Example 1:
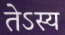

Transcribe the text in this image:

तेऽस्य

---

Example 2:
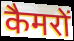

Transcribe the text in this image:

कैमरों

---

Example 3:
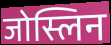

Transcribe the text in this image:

जोस्लिन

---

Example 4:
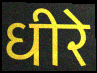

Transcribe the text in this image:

धीरे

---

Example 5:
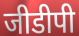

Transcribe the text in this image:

जीडीपी